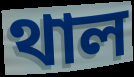
থাল